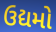
ઉદ્યમો